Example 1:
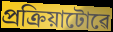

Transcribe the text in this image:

প্ৰক্ৰিয়াটোৱে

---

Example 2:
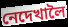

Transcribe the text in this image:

নেদেখালৈ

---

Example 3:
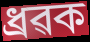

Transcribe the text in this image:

ধ্ৰৱক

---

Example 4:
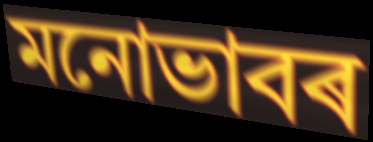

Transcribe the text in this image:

মনোভাবৰ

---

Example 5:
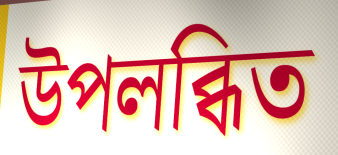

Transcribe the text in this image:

উপলব্ধিত